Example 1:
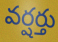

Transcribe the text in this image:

వర్షర్తు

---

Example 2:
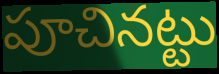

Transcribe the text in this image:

పూచినట్టు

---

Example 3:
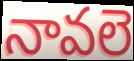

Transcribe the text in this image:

నావలె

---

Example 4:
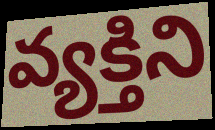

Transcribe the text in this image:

వ్యక్తిని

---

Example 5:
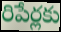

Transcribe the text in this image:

రిపేర్లకు